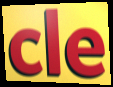
cle